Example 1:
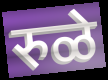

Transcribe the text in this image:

रुळे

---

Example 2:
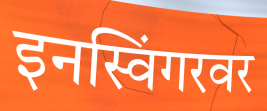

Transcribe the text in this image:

इनस्विंगरवर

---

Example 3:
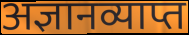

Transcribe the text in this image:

अज्ञानव्याप्त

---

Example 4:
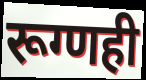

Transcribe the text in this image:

रूग्णही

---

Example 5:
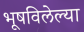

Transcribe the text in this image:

भूषविलेल्या